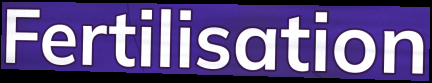
Fertilisation